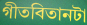
গীতবিতানটা